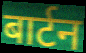
बार्टन